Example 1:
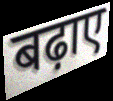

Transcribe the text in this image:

बढ़ाए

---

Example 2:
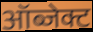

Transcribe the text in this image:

ऑब्जेक्ट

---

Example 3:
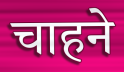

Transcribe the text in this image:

चाहने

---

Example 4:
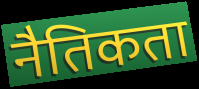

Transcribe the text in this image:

नैतिकता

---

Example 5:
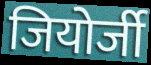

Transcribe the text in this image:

जियोर्जी